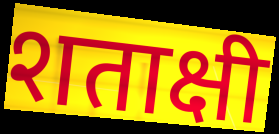
शताक्षी